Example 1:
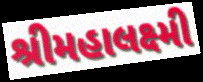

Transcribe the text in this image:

શ્રીમહાલક્ષ્મી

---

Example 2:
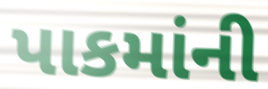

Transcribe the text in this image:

પાકમાંની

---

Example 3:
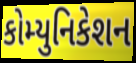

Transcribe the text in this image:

કોમ્યુનિકેશન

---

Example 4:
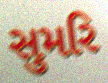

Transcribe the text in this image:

સુમરિ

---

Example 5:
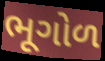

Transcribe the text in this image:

ભૂગોળ